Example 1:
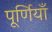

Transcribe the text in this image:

पूर्णियाँ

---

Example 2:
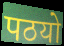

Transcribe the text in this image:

पठयो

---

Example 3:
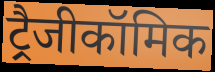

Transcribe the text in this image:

ट्रैजीकॉमिक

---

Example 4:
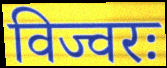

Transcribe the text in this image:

विज्वरः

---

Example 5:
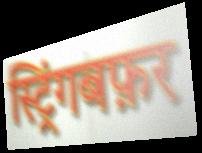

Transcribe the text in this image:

स्ट्रिंगबफ़र